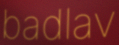
badlav